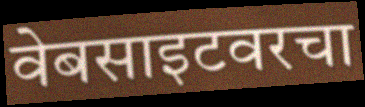
वेबसाइटवरचा